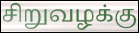
சிறுவழக்கு